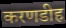
करणडीह